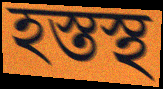
হস্তস্থ